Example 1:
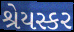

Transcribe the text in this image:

શ્રેયસ્કર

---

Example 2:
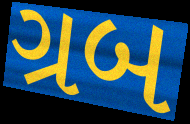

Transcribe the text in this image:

ગ્રબ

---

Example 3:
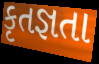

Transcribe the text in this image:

કૃતજ્ઞતા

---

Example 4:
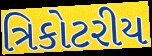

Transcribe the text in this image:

ત્રિકોટરીય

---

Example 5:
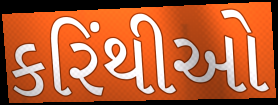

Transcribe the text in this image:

કરિંથીઓ